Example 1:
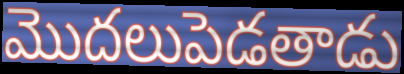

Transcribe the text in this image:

మొదలుపెడతాడు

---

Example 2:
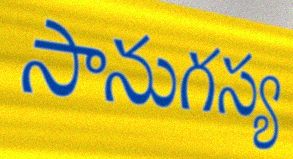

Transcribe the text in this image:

సానుగస్య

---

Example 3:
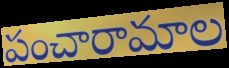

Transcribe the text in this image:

పంచారామాల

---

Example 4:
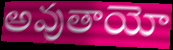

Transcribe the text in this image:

అవుతాయో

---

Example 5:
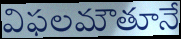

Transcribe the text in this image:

విఫలమౌతూనే